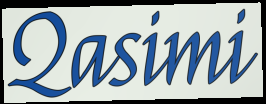
Qasimi